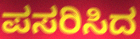
ಪಸರಿಸಿದ